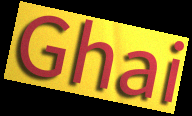
Ghai